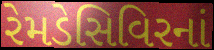
રેમડેસિવિરનાં